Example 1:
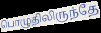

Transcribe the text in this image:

பொழுதிலிருந்தே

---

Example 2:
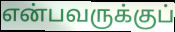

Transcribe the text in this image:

என்பவருக்குப்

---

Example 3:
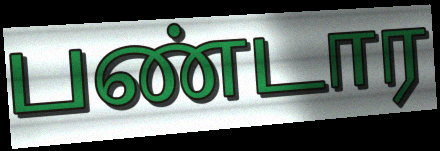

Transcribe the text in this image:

பண்டார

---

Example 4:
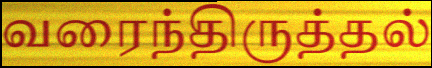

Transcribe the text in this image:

வரைந்திருத்தல்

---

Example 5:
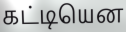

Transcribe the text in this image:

கட்டியென